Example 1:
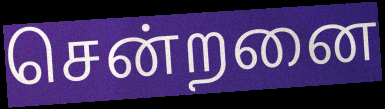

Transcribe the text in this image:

சென்றனை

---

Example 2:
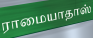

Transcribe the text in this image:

ராமையாதாஸ்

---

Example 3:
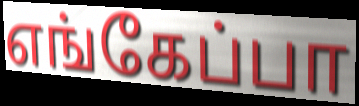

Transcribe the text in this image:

எங்கேப்பா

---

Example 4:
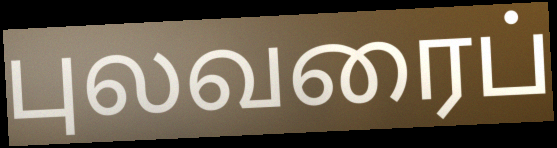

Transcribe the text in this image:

புலவரைப்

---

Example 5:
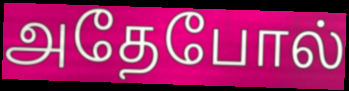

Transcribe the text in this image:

அதேபோல்